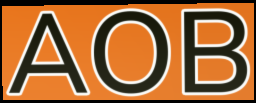
AOB